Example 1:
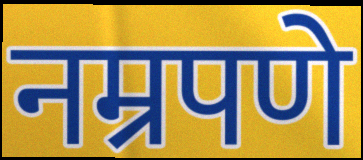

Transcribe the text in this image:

नम्रपणे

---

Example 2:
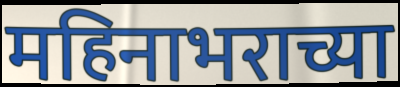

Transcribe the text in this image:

महिनाभराच्या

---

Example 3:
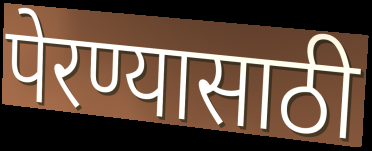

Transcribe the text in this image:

पेरण्यासाठी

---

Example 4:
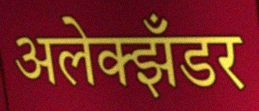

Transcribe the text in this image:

अलेक्झँडर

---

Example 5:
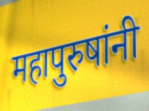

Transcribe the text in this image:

महापुरुषांनी